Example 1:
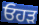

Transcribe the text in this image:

ਓਹੜ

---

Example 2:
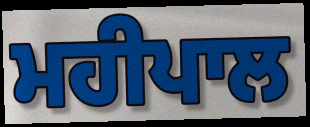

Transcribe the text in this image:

ਮਹੀਪਾਲ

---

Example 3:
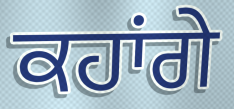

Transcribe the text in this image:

ਕਹਾਂਗੇ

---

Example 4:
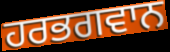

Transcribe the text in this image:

ਹਰਭਗਵਾਨ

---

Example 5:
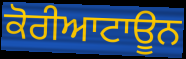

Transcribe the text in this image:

ਕੋਰੀਆਟਾਊਨ